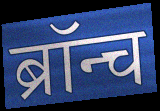
ब्रॉन्च